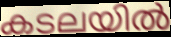
കടലയിൽ